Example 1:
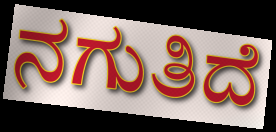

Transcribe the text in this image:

ನಗುತಿದೆ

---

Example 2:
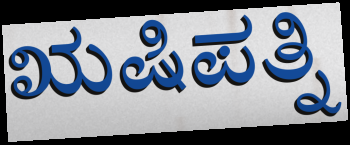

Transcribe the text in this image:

ಋಷಿಪತ್ನಿ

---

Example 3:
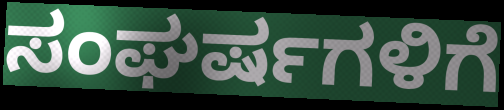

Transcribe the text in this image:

ಸಂಘರ್ಷಗಳಿಗೆ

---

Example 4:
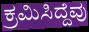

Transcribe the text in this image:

ಕ್ರಮಿಸಿದ್ದೆವು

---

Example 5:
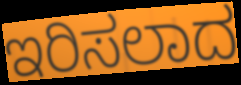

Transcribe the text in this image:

ಇರಿಸಲಾದ